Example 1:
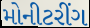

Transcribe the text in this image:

મોનીટરીંગ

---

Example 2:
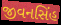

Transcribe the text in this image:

જીવનસિંહ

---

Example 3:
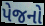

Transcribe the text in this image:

પેજનો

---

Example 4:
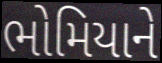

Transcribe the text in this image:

ભોમિયાને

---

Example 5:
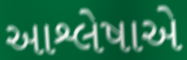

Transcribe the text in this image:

આશ્લેષાએ